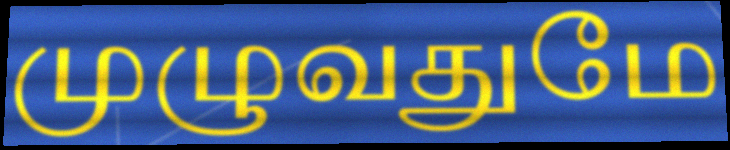
முழுவதுமே